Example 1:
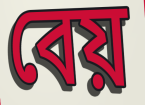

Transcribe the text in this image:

বেয়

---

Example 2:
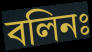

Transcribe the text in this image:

বলিনঃ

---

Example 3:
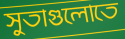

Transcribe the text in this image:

সুতাগুলোতে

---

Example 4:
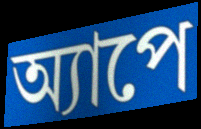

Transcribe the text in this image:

অ্যাপে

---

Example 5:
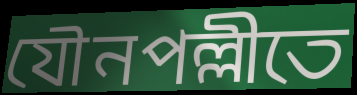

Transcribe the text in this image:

যৌনপল্লীতে